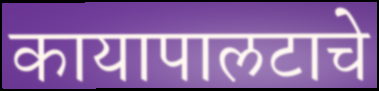
कायापालटाचे